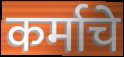
कर्माचे